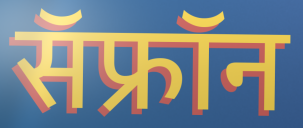
सॅफ्रॉन